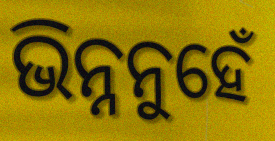
ଭିନ୍ନନୁହେଁ